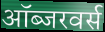
ऑब्जरवर्स